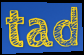
tad